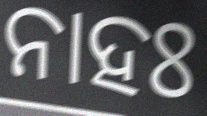
ନାହଃ